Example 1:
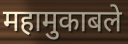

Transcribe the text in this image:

महामुकाबले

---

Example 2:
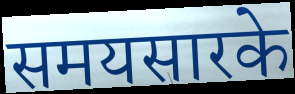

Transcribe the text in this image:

समयसारके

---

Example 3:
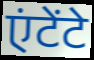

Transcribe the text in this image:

एंटेंटे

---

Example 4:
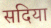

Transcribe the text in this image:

सदिया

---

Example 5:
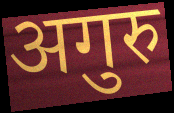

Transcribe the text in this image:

अगुरु